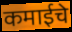
कमाईचे